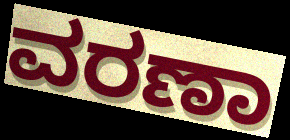
ವರಣಾ